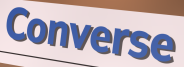
Converse